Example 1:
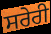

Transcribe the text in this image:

ਸਰੇਰੀ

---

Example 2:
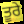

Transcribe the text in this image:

ਤੂਰੇ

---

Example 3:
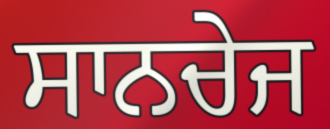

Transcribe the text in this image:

ਸਾਨਚੇਜ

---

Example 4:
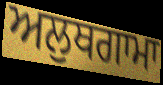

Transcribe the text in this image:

ਅਲੁਥਗਾਮਾ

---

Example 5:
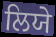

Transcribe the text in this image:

ਲਿਯੇ